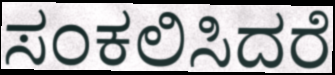
ಸಂಕಲಿಸಿದರೆ